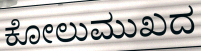
ಕೋಲುಮುಖದ